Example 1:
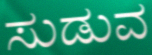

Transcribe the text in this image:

ಸುಡುವ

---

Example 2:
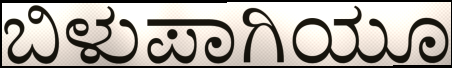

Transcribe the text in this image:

ಬಿಳುಪಾಗಿಯೂ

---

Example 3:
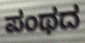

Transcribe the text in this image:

ಪಂಥದ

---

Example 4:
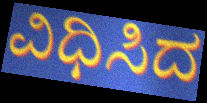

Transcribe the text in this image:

ವಿಧಿಸಿದ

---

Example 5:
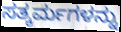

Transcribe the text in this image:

ಸತ್ಕರ್ಮಗಳನ್ನು